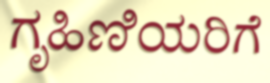
ಗೃಹಿಣಿಯರಿಗೆ